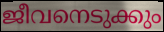
ജീവനെടുക്കും